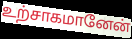
உற்சாகமானேன்